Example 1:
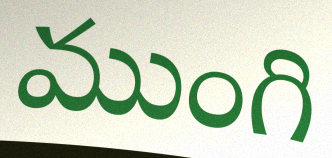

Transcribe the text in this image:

ముంగి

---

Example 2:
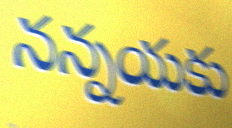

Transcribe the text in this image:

నన్నయకు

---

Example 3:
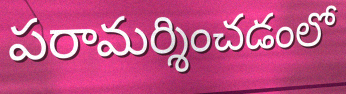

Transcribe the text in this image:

పరామర్శించడంలో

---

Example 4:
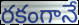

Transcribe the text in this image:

రకంగానే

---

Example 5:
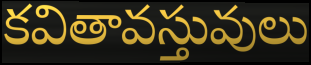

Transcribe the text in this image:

కవితావస్తువులు